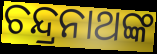
ଚନ୍ଦ୍ରନାଥଙ୍କ